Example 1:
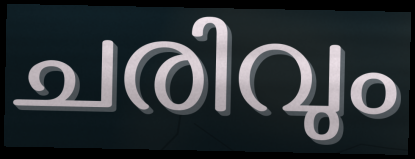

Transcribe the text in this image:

ചരിവും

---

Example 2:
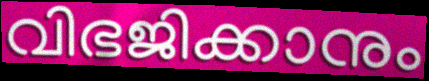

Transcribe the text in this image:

വിഭജിക്കാനും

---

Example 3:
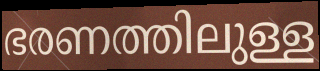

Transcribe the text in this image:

ഭരണത്തിലുള്ള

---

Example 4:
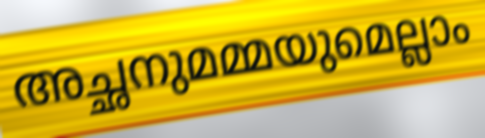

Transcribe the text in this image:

അച്ഛനുമമ്മയുമെല്ലാം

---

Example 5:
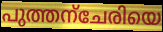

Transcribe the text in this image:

പുത്തന്ചേരിയെ